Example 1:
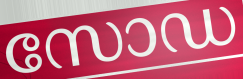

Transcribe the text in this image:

സോഡ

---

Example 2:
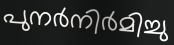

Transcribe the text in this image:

പുനർനിർമിച്ചു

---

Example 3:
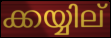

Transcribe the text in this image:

ക്കയ്യില്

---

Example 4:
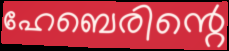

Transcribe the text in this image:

ഹേബെരിന്റെ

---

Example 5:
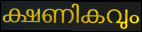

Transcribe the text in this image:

ക്ഷണികവും